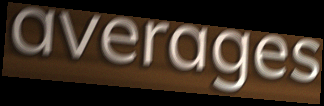
averages